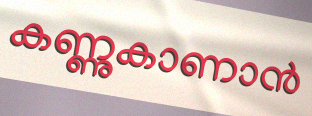
കണ്ണുകാണാൻ